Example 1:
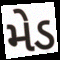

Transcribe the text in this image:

મેડ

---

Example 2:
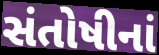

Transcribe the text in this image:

સંતોષીનાં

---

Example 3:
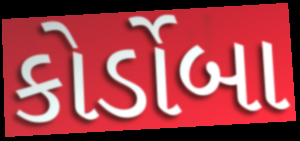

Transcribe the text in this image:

કોર્ડોબા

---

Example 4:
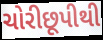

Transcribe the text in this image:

ચોરીછૂપીથી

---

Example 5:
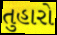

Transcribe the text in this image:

તુહારો